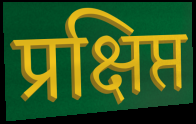
प्रक्षिप्त